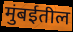
मुंबईतील